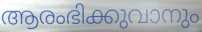
ആരംഭിക്കുവാനും